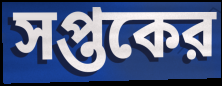
সপ্তকের